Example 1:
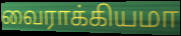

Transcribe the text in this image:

வைராக்கியமா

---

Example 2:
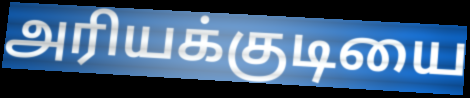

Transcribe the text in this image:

அரியக்குடியை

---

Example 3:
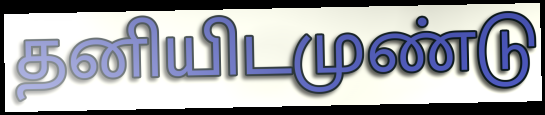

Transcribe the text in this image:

தனியிடமுண்டு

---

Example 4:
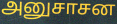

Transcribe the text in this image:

அனுசாசன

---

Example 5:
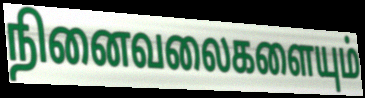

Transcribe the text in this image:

நினைவலைகளையும்